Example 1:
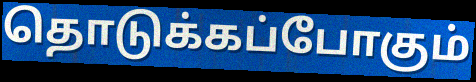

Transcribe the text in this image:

தொடுக்கப்போகும்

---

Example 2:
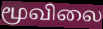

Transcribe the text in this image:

மூவிலை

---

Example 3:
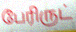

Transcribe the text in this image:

பேரிருட்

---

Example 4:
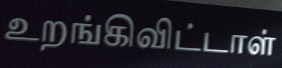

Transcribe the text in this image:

உறங்கிவிட்டாள்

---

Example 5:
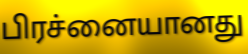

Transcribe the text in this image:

பிரச்னையானது